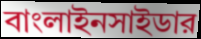
বাংলাইনসাইডার